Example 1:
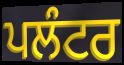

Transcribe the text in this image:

ਪਲੰਟਰ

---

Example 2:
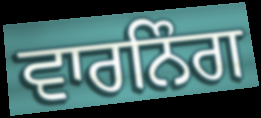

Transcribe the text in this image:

ਵਾਰਨਿੰਗ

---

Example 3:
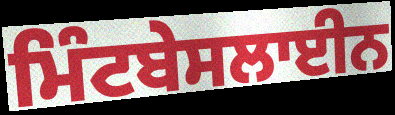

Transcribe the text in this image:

ਮਿੰਟਬੇਸਲਾਈਨ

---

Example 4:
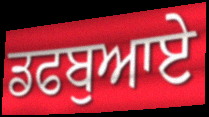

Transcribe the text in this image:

ਡਫਬੁਆਏ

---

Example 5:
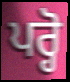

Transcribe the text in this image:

ਪਰ੍ਹੋ